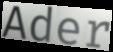
Ader